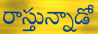
రాస్తున్నాడో